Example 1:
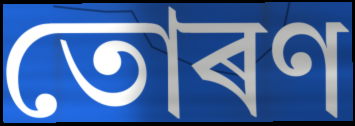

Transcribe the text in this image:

তোৰণ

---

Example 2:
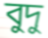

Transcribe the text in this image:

বুদু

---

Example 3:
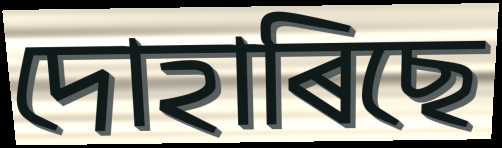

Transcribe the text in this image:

দোহাৰিছে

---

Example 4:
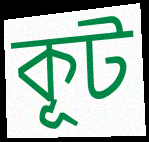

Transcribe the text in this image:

কূট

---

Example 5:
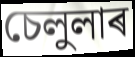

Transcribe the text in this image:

চেলুলাৰ